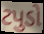
ટપુડો